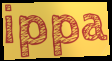
ippa